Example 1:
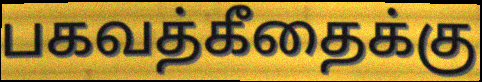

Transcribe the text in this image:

பகவத்கீதைக்கு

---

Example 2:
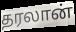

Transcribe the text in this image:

தரலான்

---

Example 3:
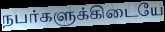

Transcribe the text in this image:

நபர்களுக்கிடையே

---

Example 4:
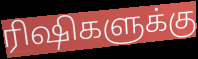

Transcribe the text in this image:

ரிஷிகளுக்கு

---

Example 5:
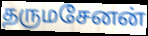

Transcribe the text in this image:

தருமசேனன்